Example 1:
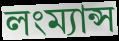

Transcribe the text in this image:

লংম্যান্স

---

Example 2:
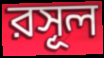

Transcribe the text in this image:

রসূল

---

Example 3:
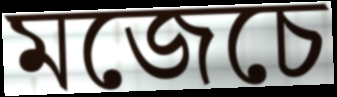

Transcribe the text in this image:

মজেচে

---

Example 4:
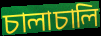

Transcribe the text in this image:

চালাচালি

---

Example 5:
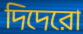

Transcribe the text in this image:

দিদেরো